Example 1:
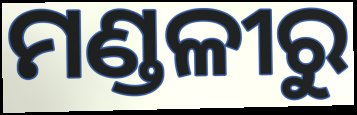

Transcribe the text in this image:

ମଣ୍ଡଳୀରୁ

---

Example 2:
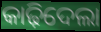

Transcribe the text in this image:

କାଢ଼ିଦେଲା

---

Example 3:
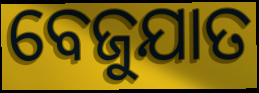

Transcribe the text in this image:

ବେଜୁଯାତ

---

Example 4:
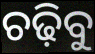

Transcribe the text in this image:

ଚଢ଼ିବୁ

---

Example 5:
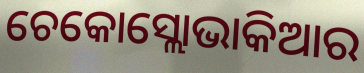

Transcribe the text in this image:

ଚେକୋସ୍ଲୋଭାକିଆର